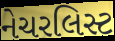
નેચરલિસ્ટ